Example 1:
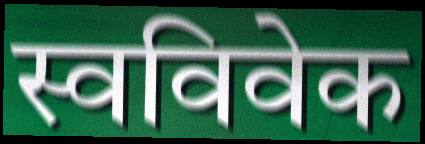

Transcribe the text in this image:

स्वविवेक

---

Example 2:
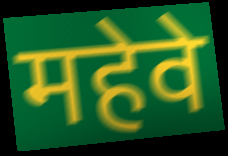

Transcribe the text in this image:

महेवे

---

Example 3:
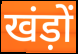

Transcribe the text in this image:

खंड़ों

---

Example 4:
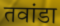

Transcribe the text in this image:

तवांडा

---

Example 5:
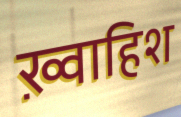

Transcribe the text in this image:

ख़्वाहिश